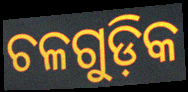
ଚଳଗୁଡ଼ିକ